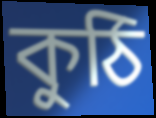
কুঠি